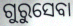
ଗୁରୁସେବା